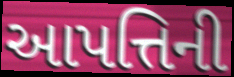
આપત્તિની